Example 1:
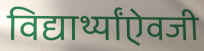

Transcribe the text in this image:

विद्यार्थ्यांऐवजी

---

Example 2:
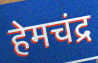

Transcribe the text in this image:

हेमचंद्र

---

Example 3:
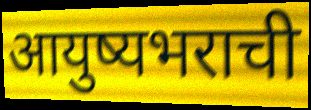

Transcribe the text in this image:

आयुष्यभराची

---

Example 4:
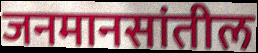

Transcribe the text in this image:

जनमानसांतील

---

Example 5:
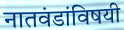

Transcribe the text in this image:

नातवंडांविषयी